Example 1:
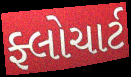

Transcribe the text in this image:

ફ્લોચાર્ટ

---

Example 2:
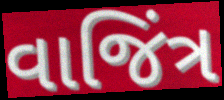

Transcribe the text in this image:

વાજિંત્ર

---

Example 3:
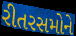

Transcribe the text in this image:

રીતરસમોને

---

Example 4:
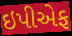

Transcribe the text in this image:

ઇપીએફ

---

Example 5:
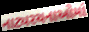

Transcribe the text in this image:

નાટ્યરચનાઓમાં